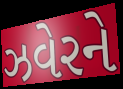
ઝવેરને